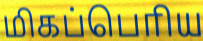
மிகப்பெரிய